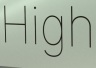
High